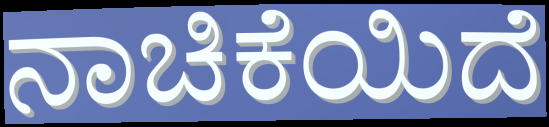
ನಾಚಿಕೆಯಿದೆ